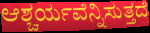
ಆಶ್ಚರ್ಯವೆನ್ನಿಸುತ್ತದೆ